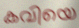
കവിയെ